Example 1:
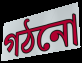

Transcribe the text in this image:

গঠনো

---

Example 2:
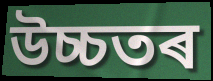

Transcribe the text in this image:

উচ্চতৰ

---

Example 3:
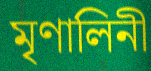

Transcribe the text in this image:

মৃণালিনী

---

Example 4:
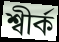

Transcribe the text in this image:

শ্বীৰ্ক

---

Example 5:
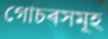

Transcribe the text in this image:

গোচৰসমূহ